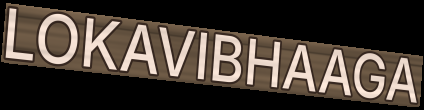
LOKAVIBHAAGA